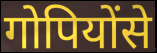
गोपियोंसे